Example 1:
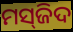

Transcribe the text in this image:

ମସ୍‌ଜିଦ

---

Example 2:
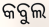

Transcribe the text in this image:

କବୁଲ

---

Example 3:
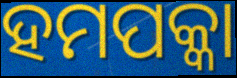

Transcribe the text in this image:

ହମପକ୍କା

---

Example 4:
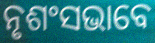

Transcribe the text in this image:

ନୃଶଂସଭାବେ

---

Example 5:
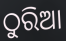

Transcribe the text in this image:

ଠୁରିଆ